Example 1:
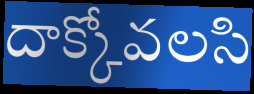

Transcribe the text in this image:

దాక్కోవలసి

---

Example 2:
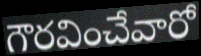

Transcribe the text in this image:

గౌరవించేవారో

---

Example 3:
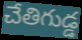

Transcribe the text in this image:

చేతిగుడ్డ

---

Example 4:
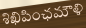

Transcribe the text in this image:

శిఖిపింఛమౌళి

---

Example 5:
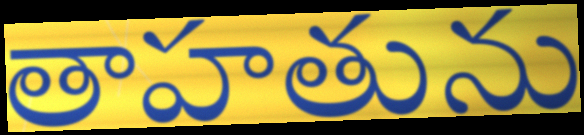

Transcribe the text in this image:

తాహతును